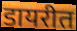
डायरीत